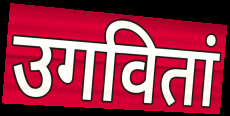
उगवितां